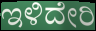
ಇಳಿದೇರಿ